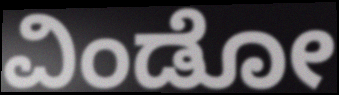
ವಿಂಡೋ